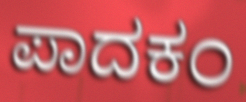
ಪಾದಕಂ